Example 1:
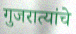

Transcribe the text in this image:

गुजरात्यांचे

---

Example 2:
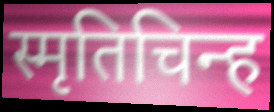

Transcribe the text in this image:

स्मृतिचिन्ह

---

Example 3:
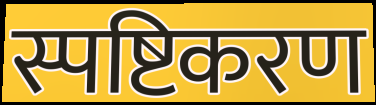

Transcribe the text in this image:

स्पष्टिकरण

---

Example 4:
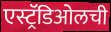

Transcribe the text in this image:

एस्ट्रॅडिओलची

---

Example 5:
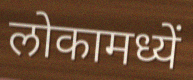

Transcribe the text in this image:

लोकामध्यें